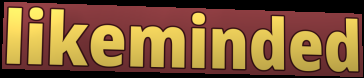
likeminded